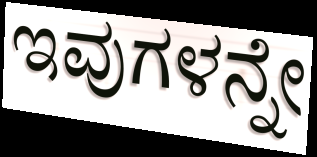
ಇವುಗಳನ್ನೇ